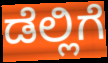
ಡೆಲ್ಲಿಗೆ